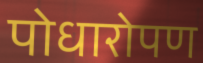
पोधारोपण